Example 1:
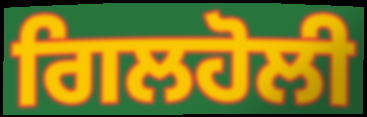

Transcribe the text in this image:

ਗਿਲਹੋਲੀ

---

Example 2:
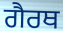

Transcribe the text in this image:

ਗੈਰਥ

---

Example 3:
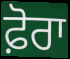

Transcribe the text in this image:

ਫ਼ੋਰਾ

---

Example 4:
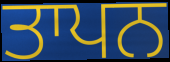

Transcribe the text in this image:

ਤਾਪਨ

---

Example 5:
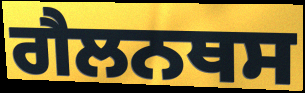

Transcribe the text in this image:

ਗੈਲਨਥਸ